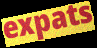
expats